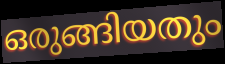
ഒരുങ്ങിയതും